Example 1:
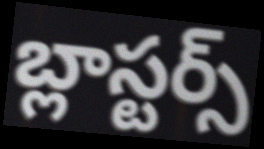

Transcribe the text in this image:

బ్లాస్టర్స్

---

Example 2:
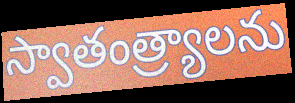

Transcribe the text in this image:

స్వాతంత్ర్యాలను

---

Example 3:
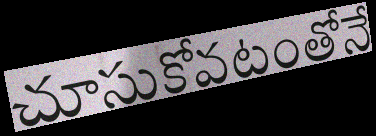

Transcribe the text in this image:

చూసుకోవటంతోనే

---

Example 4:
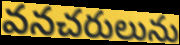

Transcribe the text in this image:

వనచరులును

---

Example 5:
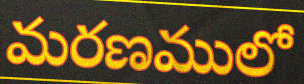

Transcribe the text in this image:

మరణములో